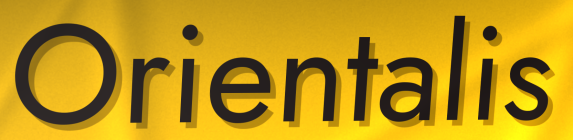
Orientalis